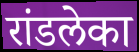
रांडलेका